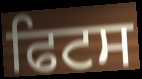
ਫਿਟਸ